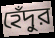
হেঁদুর